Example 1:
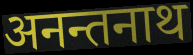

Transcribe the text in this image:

अनन्तनाथ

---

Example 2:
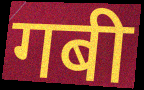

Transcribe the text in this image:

गबी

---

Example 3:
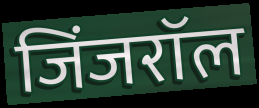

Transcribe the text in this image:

जिंजरॉल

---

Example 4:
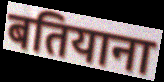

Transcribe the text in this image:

बतियाना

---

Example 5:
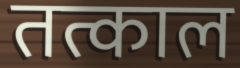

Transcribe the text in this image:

तत्काल